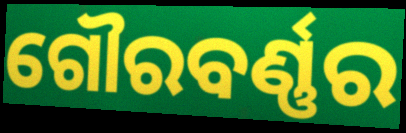
ଗୌରବର୍ଣ୍ଣର